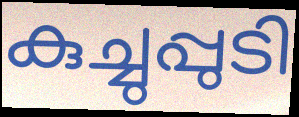
കുച്ചുപ്പുടി